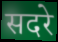
सदरे